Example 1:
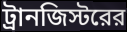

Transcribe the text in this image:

ট্রানজিস্টরের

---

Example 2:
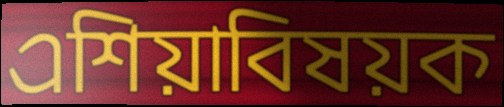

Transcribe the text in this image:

এশিয়াবিষয়ক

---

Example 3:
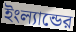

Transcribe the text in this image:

ইংল্যান্ডের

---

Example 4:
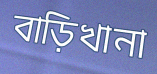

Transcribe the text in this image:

বাড়িখানা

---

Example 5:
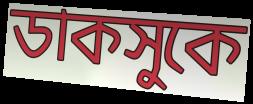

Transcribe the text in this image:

ডাকসুকে